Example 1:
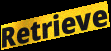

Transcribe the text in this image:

Retrieve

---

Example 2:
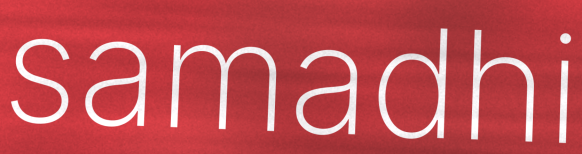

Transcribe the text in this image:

samadhi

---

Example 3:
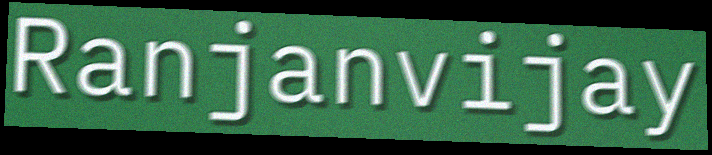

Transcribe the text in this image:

Ranjanvijay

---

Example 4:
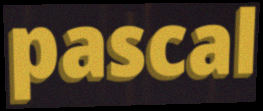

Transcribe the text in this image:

pascal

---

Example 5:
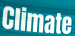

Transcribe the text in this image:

Climate